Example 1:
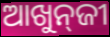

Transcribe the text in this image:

ଆଖୁନ୍‍ଜୀ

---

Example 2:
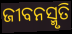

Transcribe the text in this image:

ଜୀବନସ୍ମୃତି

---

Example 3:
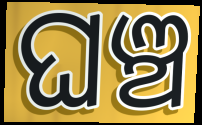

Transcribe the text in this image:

ଘଞ୍ଚ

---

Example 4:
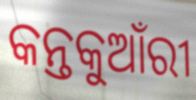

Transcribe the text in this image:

କନ୍ତକୁଆଁରୀ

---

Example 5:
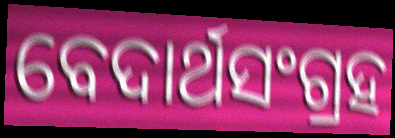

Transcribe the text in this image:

ବେଦାର୍ଥସଂଗ୍ରହ